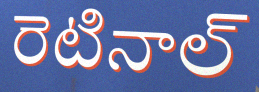
రెటినాల్